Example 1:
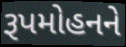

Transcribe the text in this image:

રૂપમોહનને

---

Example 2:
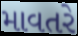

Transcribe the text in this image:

માવતરે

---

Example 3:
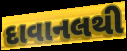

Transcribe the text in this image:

દાવાનલથી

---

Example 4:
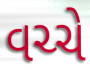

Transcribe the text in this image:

વચ્ચે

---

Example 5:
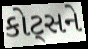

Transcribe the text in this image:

કોટ્સને